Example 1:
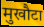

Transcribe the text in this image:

मुखौटा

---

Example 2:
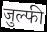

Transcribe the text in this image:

जुल्फी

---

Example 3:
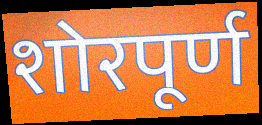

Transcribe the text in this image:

शोरपूर्ण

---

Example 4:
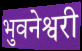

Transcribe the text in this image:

भुवनेश्वरी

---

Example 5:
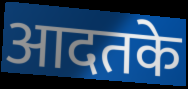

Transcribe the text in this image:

आदतके